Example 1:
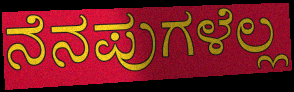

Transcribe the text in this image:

ನೆನಪುಗಳೆಲ್ಲ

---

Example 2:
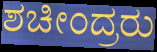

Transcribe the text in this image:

ಶಚೀಂದ್ರರು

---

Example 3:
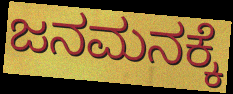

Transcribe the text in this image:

ಜನಮನಕ್ಕೆ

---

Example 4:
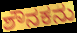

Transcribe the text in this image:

ಶೌನಕನು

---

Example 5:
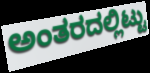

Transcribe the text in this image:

ಅಂತರದಲ್ಲಿಟ್ಟು